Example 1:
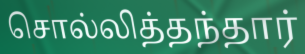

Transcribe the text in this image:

சொல்லித்தந்தார்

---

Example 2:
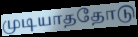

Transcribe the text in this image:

முடியாததோடு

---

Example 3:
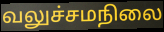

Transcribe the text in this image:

வலுச்சமநிலை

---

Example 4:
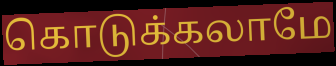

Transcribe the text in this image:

கொடுக்கலாமே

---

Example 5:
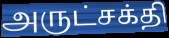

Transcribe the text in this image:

அருட்சக்தி